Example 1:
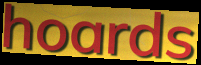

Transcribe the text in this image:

hoards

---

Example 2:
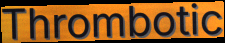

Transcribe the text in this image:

Thrombotic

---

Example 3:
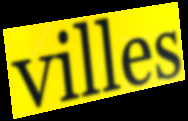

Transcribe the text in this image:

villes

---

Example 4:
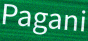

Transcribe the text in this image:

Pagani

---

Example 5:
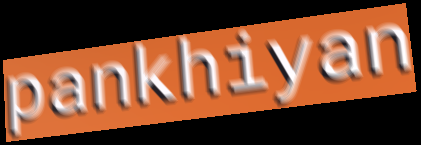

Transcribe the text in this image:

pankhiyan